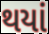
થયાં